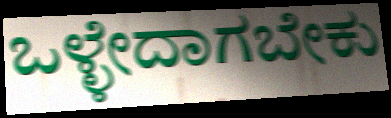
ಒಳ್ಳೇದಾಗಬೇಕು